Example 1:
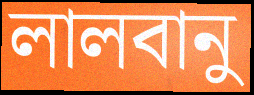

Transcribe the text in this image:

লালবানু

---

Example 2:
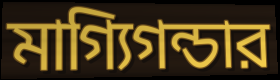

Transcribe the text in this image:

মাগ্যিগন্ডার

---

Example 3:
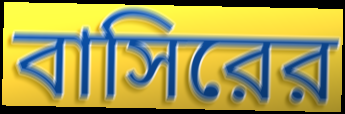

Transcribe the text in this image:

বাসিরের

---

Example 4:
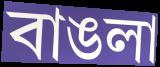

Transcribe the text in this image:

বাঙলা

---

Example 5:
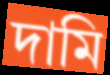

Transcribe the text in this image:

দামি